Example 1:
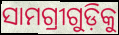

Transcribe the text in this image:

ସାମଗ୍ରୀଗୁଡ଼ିକୁ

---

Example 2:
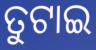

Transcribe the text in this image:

ତୁଟାଇ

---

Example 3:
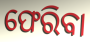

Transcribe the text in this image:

ଫେରିବା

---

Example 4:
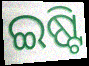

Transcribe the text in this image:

ଇଷ୍ଟି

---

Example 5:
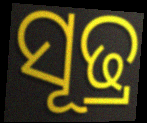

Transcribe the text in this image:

ସୂଢ୍ର